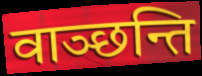
वाञ्छन्ति